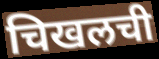
चिखलची